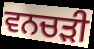
ਵਨਚੜੀ